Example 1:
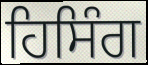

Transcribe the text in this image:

ਹਿਸਿੰਗ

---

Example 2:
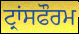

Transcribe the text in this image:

ਟ੍ਰਾਂਸਫੌਰਮ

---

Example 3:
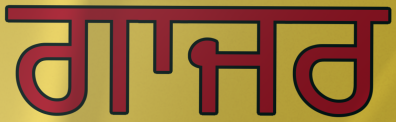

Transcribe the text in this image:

ਗਾਜਰ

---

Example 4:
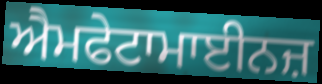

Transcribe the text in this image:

ਐਮਫੇਟਾਮਾਈਨਜ਼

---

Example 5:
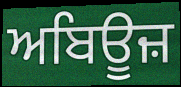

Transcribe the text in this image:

ਅਬਿਊਜ਼